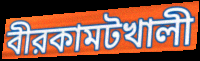
বীরকামটখালী